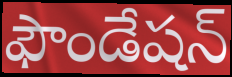
ఫౌండేషన్